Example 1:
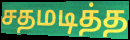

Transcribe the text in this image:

சதமடித்த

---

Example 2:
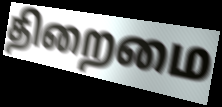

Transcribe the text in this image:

திறைமை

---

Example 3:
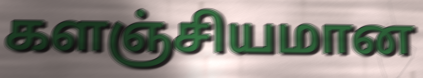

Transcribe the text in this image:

களஞ்சியமான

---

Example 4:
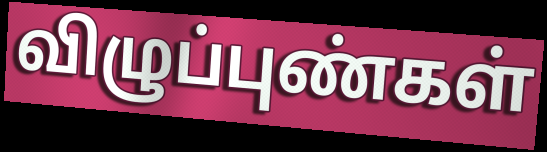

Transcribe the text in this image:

விழுப்புண்கள்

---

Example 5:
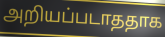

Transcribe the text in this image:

அறியப்படாததாக